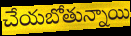
చేయబోతున్నాయి